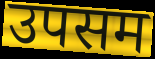
उपसम